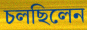
চলছিলেন